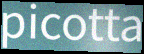
picotta